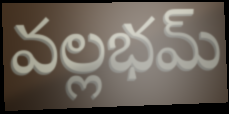
వల్లభమ్